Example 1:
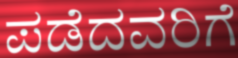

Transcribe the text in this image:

ಪಡೆದವರಿಗೆ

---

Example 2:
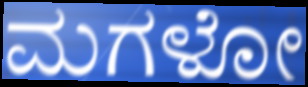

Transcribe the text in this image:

ಮಗಳೋ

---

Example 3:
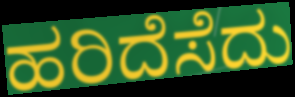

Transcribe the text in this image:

ಹರಿದೆಸೆದು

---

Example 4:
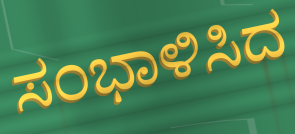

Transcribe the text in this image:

ಸಂಭಾಳಿಸಿದ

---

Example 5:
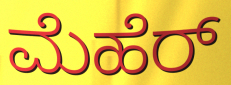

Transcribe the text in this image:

ಮೆಹೆರ್